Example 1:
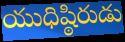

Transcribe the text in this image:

యుధిష్ఠిరుడు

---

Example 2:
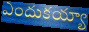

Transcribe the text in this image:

ఎందుకయ్యా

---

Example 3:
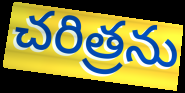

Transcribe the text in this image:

చరిత్రను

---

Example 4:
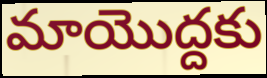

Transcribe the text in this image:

మాయొద్దకు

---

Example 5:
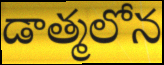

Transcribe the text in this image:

డాత్మలోన